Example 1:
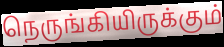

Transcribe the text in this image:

நெருங்கியிருக்கும்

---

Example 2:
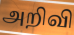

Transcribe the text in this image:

அறிவி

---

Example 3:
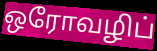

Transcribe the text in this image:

ஒரோவழிப்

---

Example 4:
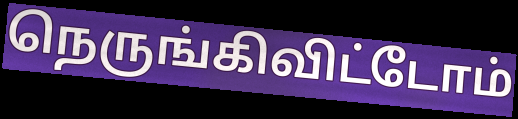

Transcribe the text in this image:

நெருங்கிவிட்டோம்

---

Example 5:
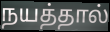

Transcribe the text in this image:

நயத்தால்